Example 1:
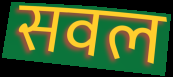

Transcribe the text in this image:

सवल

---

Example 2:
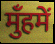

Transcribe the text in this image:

मुँहमें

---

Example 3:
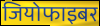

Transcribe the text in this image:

जियोफाइबर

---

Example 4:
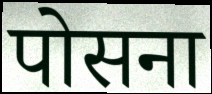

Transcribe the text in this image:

पोसना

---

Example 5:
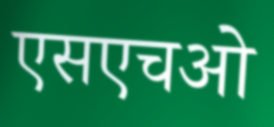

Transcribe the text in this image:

एसएचओ